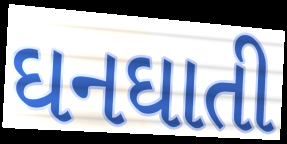
ઘનઘાતી